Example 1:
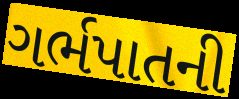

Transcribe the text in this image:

ગર્ભપાતની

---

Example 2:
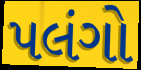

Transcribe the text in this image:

પલંગો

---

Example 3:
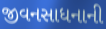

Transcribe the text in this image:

જીવનસાધનાની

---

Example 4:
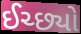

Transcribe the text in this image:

ઈચ્છ્યો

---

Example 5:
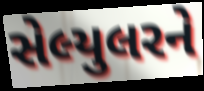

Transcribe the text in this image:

સેલ્યુલરને